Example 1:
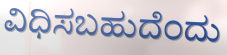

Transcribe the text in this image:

ವಿಧಿಸಬಹುದೆಂದು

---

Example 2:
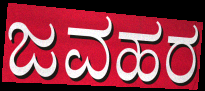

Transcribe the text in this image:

ಜವಹರ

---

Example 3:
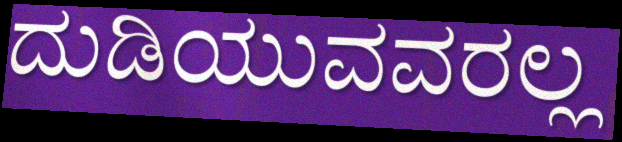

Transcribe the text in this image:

ದುಡಿಯುವವರಲ್ಲ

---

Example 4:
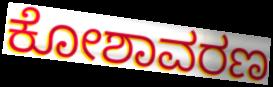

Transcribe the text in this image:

ಕೋಶಾವರಣ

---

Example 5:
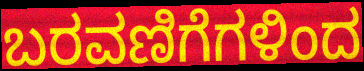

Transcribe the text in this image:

ಬರವಣಿಗೆಗಳಿಂದ